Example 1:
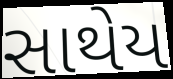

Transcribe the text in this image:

સાથેય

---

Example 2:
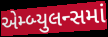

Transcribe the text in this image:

એમ્બ્યુલન્સમાં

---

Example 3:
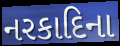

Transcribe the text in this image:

નરકાદિના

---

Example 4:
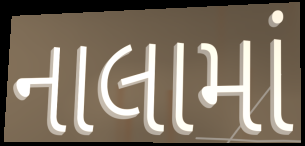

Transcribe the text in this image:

નાલામાં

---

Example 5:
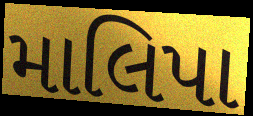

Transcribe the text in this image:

માલિપા